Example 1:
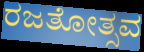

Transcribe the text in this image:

ರಜತೋತ್ಸವ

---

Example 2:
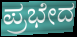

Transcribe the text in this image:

ಪ್ರಭೇದ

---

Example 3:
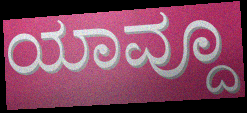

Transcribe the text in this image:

ಯಾವ್ದೂ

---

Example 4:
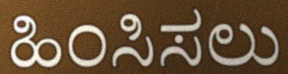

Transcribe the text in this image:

ಹಿಂಸಿಸಲು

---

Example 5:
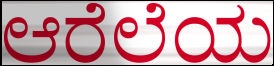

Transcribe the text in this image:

ಆರೆಲೆಯ